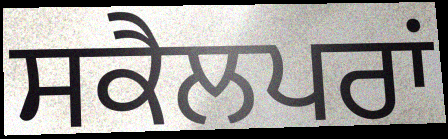
ਸਕੈਲਪਰਾਂ